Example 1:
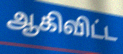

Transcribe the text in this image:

ஆகிவிட்ட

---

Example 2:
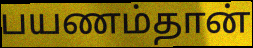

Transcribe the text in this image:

பயணம்தான்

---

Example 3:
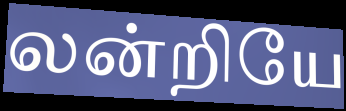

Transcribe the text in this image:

லன்றியே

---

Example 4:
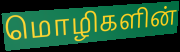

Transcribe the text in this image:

மொழிகளின்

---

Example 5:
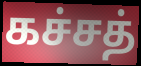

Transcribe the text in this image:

கச்சத்